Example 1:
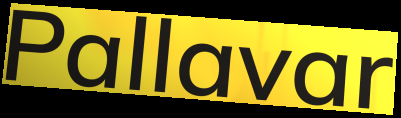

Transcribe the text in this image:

Pallavar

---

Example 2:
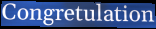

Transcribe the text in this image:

Congretulation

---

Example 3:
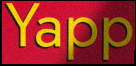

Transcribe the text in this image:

Yapp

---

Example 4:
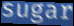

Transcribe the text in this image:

sugar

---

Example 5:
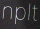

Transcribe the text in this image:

nplt